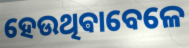
ହେଉଥିଵାବେଳେ